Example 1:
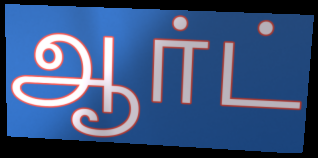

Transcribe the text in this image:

ஆர்ட்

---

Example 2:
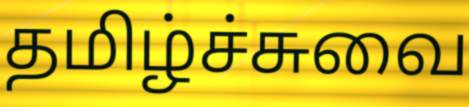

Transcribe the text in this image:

தமிழ்ச்சுவை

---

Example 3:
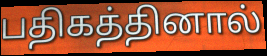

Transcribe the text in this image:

பதிகத்தினால்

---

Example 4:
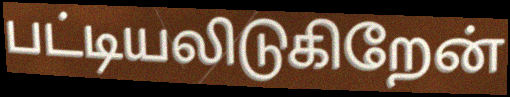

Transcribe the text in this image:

பட்டியலிடுகிறேன்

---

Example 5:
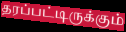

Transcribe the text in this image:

தரப்பட்டிருக்கும்